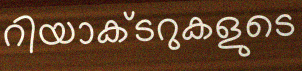
റിയാക്ടറുകളുടെ